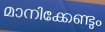
മാനിക്കേണ്ടും